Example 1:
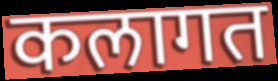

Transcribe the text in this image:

कलागत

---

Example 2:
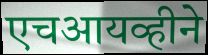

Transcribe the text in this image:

एचआयव्हीने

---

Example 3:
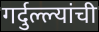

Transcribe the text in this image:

गर्दुल्ल्यांची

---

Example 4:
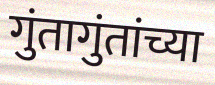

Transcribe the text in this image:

गुंतागुंतांच्या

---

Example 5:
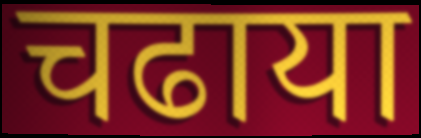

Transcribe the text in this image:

चढाया